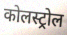
कोलस्ट्रोल